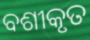
ବଶୀକୃତ